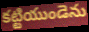
కట్టియుండెను